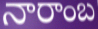
నారాంబ